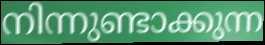
നിന്നുണ്ടാക്കുന്ന